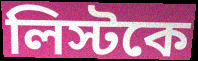
লিস্টকে